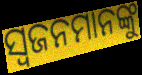
ସ୍ବଜନମାନଙ୍କୁ